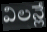
విలన్లే